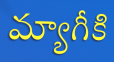
మ్యాగీకి